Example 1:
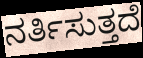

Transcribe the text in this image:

ನರ್ತಿಸುತ್ತದೆ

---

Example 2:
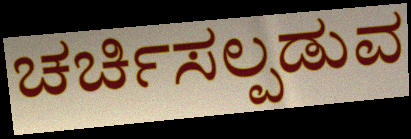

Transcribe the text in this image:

ಚರ್ಚಿಸಲ್ಪಡುವ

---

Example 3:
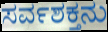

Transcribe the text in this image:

ಸರ್ವಶಕ್ತನು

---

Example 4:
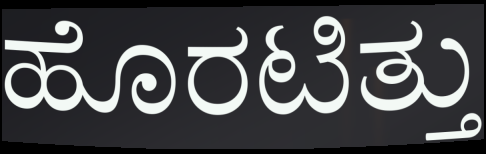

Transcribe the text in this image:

ಹೊರಟಿತ್ತು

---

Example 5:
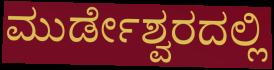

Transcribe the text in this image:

ಮುರ್ಡೇಶ್ವರದಲ್ಲಿ